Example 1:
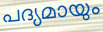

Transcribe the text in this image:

പദ്യമായും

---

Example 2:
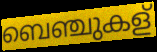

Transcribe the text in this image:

ബെഞ്ചുകള്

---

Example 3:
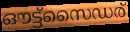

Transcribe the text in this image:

ഔട്ട്സൈഡര്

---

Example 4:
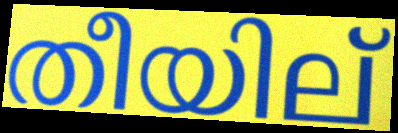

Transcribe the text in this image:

തീയില്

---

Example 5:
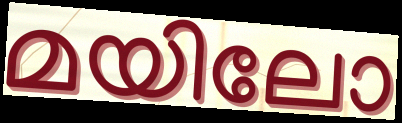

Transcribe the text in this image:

മയിലോ